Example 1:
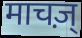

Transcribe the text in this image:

माचज़्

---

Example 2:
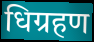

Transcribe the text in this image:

धिग्रहण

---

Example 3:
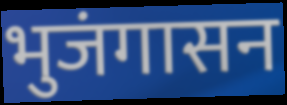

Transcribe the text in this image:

भुजंगासन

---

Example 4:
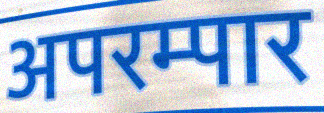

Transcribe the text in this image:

अपरम्पार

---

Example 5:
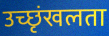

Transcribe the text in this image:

उच्छृंखलता